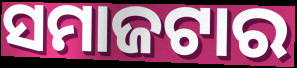
ସମାଜଟାର